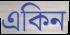
একিন